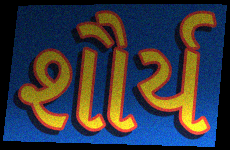
શૌર્ય